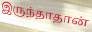
இருந்தாதான்